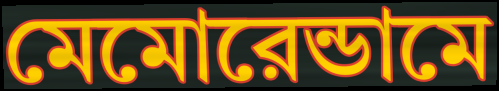
মেমোরেন্ডামে